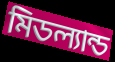
মিডল্যান্ড